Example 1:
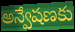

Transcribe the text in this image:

అన్వేషణకు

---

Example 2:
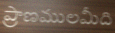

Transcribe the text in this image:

ప్రాణములమీది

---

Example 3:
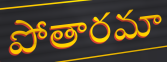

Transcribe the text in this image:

పోతారమా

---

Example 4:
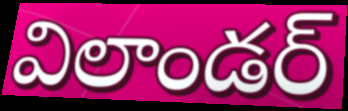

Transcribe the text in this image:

విలాండర్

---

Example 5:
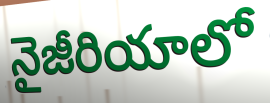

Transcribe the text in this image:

నైజీరియాలో